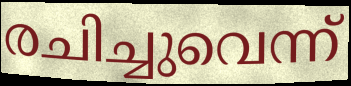
രചിച്ചുവെന്ന്